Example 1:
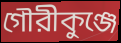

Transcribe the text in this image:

গৌরীকুঞ্জে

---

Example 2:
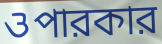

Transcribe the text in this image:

ওপারকার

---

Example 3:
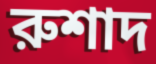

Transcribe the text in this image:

রুশাদ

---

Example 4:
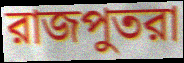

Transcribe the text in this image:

রাজপুতরা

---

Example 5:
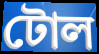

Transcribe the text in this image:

টোল